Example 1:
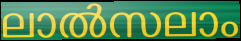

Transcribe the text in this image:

ലാൽസലാം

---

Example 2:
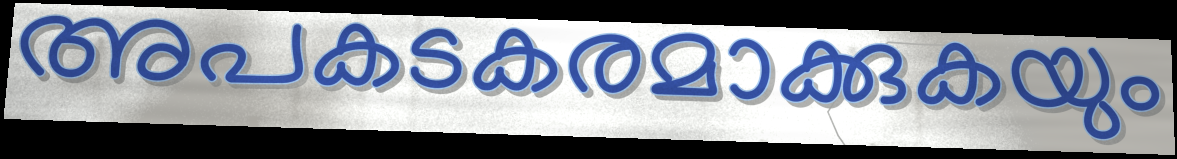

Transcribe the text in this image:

അപകടകരമാക്കുകയും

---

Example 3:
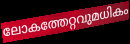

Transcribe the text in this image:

ലോകത്തേറ്റവുമധികം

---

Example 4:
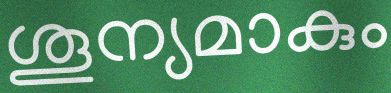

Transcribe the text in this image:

ശൂന്യമാകും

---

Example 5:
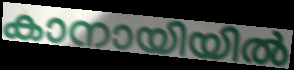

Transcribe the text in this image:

കാനായിയിൽ